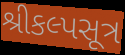
શ્રીકલ્પસૂત્ર